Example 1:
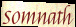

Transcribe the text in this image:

somnath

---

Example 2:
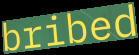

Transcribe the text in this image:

bribed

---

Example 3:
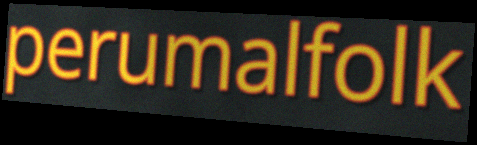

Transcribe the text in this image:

perumalfolk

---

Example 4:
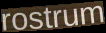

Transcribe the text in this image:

rostrum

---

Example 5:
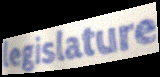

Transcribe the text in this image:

legislature